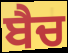
ਬੈਚ